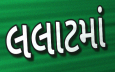
લલાટમાં